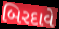
બિરદાવે